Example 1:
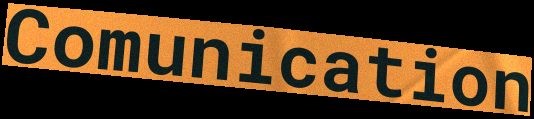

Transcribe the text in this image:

Comunication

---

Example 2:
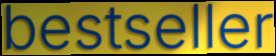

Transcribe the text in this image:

bestseller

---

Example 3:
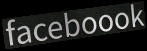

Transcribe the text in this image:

faceboook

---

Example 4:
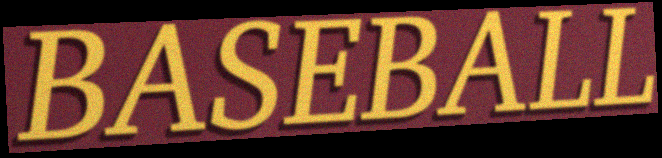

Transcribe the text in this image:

BASEBALL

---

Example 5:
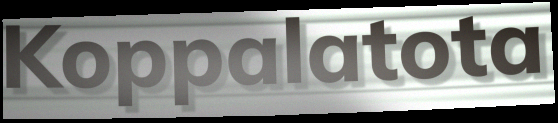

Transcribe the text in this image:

Koppalatota